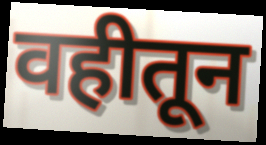
वहीतून